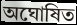
অঘোষিত